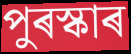
পুৰস্কাৰ